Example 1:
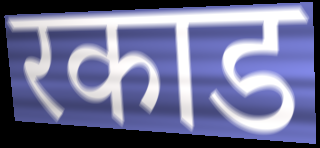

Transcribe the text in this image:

रकाड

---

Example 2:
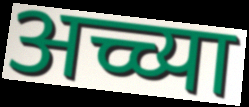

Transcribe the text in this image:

अच्च्या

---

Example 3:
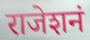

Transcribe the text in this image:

राजेशनं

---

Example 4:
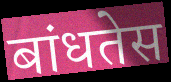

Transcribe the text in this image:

बांधतेस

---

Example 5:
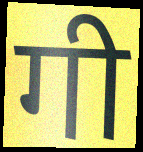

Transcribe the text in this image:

गी